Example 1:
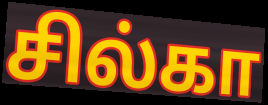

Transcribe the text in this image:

சில்கா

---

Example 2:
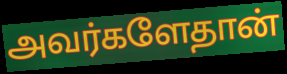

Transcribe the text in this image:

அவர்களேதான்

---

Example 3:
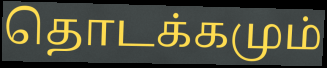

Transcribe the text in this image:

தொடக்கமும்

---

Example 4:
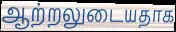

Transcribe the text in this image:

ஆற்றலுடையதாக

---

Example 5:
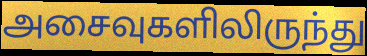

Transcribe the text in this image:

அசைவுகளிலிருந்து